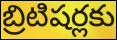
బ్రిటిషర్లకు